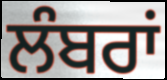
ਲੰਬਰਾਂ